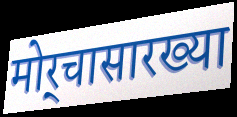
मोर्चासारख्या